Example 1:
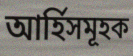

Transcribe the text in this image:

আৰ্হিসমূহক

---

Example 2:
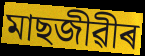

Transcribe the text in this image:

মাছজীৱীৰ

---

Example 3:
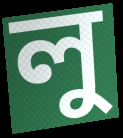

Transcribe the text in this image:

লু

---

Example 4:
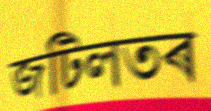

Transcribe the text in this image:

জটিলতৰ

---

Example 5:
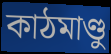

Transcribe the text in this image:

কাঠমাণ্ডু